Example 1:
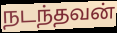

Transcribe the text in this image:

நடந்தவன்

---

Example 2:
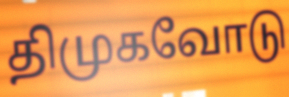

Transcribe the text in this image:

திமுகவோடு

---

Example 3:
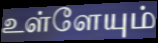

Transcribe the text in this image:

உள்ளேயும்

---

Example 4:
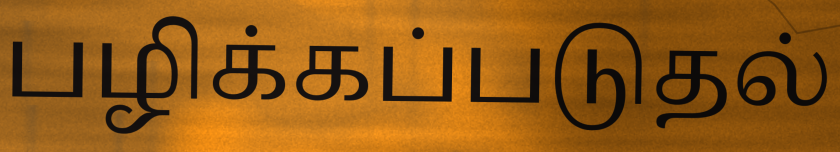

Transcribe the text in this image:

பழிக்கப்படுதல்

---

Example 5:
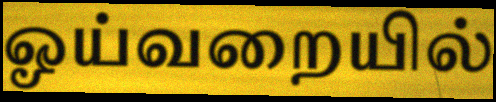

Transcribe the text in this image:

ஓய்வறையில்